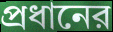
প্রধানের